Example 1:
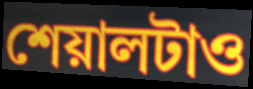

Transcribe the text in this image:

শেয়ালটাও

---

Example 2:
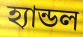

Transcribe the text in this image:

হ্যান্ডল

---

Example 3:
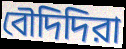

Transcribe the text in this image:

বৌদিদিরা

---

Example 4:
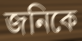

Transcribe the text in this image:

জনিকে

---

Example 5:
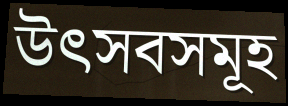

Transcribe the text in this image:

উৎসবসমূহ